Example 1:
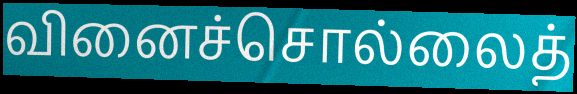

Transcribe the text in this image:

வினைச்சொல்லைத்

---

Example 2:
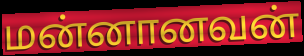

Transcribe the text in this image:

மன்னானவன்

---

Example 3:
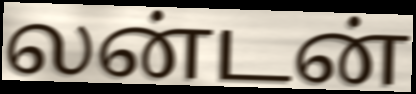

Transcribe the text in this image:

லன்டன்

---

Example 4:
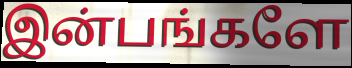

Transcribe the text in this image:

இன்பங்களே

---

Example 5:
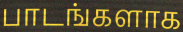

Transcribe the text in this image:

பாடங்களாக